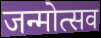
जन्मोत्सव